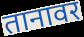
तानावर